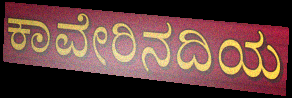
ಕಾವೇರಿನದಿಯ